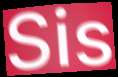
Sis